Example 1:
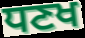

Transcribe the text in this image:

ਧਣਖ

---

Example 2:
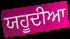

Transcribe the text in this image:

ਯਹੂਦੀਆ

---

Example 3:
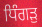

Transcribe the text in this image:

ਧਿੰਗੜੁ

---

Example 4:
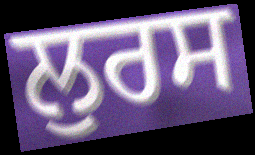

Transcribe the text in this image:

ਲੁਰਸ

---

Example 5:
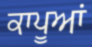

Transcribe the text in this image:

ਕਾਪੂਆਂ